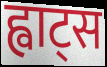
ह्वाट्स